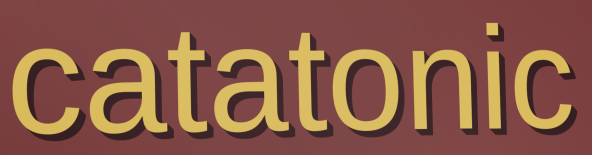
catatonic